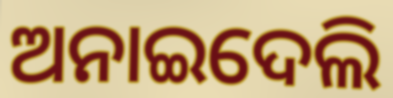
ଅନାଇଦେଲି